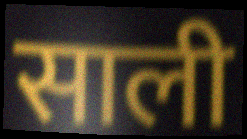
साली